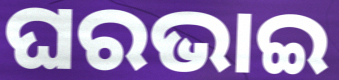
ଘରଭାଇ